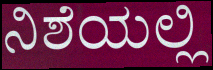
ನಿಶೆಯಲ್ಲಿ